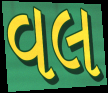
વલ